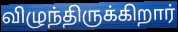
விழுந்திருக்கிறார்